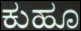
ಕುಹೂ